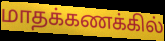
மாதக்கணக்கில்